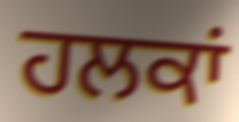
ਹਲਕਾਂ